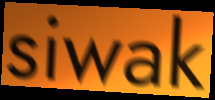
siwak